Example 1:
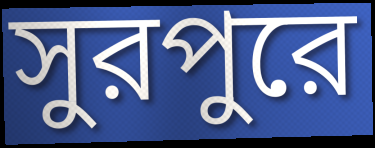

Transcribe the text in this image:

সুরপুরে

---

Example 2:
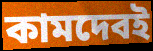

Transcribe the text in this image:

কামদেবই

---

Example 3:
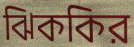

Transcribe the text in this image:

ঝিককির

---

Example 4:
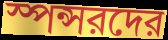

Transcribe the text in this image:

স্পন্সরদের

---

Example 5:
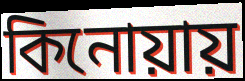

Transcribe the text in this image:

কিনোয়ায়